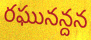
రఘునన్దన